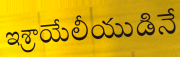
ఇశ్రాయేలీయుడినే